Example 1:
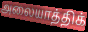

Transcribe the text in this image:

அலையாத்திக்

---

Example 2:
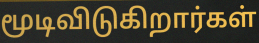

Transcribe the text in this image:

மூடிவிடுகிறார்கள்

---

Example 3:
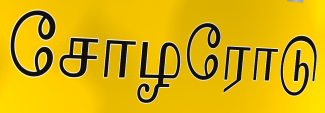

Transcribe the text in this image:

சோழரோடு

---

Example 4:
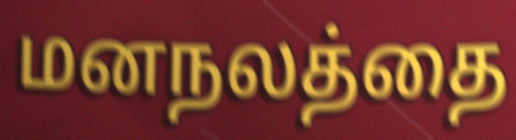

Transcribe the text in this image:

மனநலத்தை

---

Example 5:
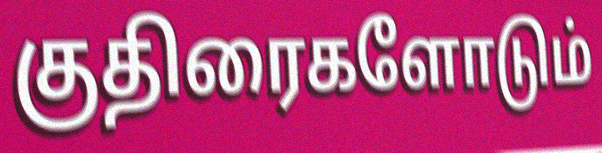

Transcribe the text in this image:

குதிரைகளோடும்